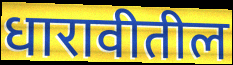
धारावीतील